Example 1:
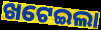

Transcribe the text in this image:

ଖଟେଇଲା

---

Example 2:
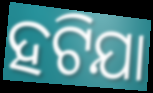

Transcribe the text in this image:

ହଟିଯା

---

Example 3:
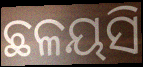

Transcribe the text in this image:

ଛଳୟସି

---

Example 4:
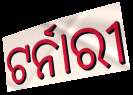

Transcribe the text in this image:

ଟର୍ନାରୀ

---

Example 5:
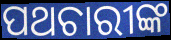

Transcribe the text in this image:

ପଥଚାରୀଙ୍କ